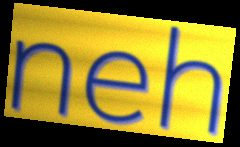
neh